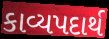
કાવ્યપદાર્થ